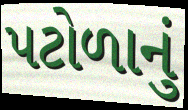
પટોળાનું